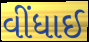
વીંધાઈ